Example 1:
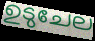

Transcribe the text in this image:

ഉടുചേല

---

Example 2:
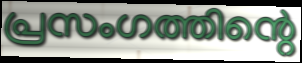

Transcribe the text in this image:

പ്രസംഗത്തിന്റെ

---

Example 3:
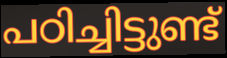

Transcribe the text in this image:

പഠിച്ചിട്ടുണ്ട്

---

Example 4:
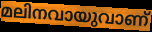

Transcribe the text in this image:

മലിനവായുവാണ്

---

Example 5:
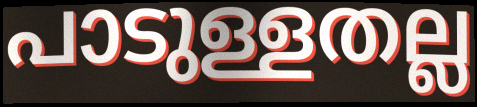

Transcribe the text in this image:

പാടുള്ളതല്ല